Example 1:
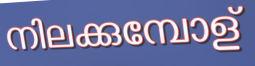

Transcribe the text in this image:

നിലക്കുമ്പോള്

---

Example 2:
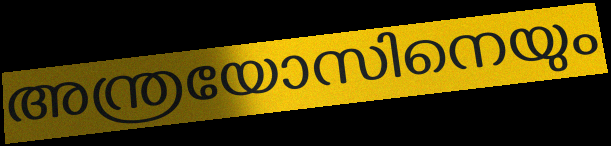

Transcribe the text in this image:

അന്ത്രയോസിനെയും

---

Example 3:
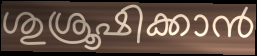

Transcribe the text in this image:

ശുശ്രൂഷിക്കാൻ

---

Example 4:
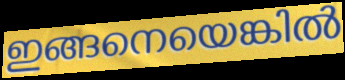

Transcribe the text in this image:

ഇങ്ങനെയെങ്കിൽ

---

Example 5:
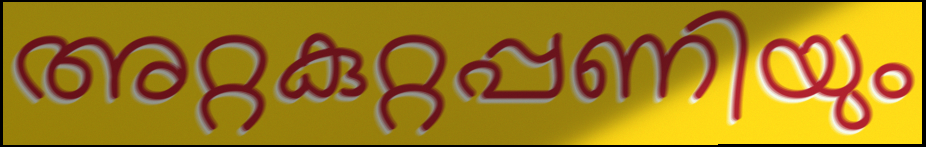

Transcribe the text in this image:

അറ്റകുറ്റപ്പണിയും